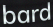
bard